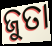
ଜୁତା